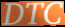
DTC